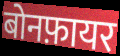
बोनफ़ायर